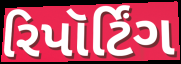
રિપૉર્ટિંગ